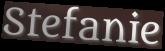
Stefanie